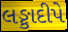
લઙ્કાદીપે